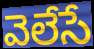
వెలేసే